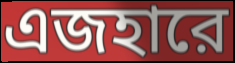
এজহারে